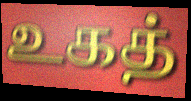
உகத்